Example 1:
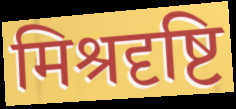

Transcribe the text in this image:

मिश्रदृष्टि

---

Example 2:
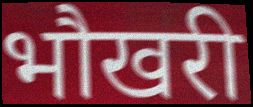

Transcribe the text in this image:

भौखरी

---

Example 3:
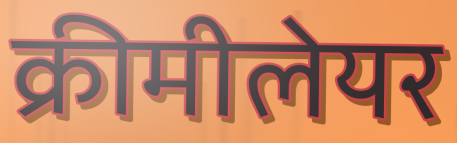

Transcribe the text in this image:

क्रीमीलेयर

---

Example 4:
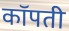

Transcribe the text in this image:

कॉपती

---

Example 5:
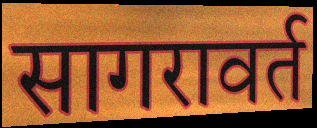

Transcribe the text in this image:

सागरावर्त